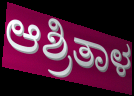
ಆಶ್ರಿತಾಳ